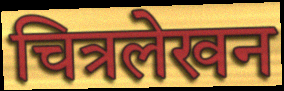
चित्रलेखन